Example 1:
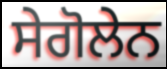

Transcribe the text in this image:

ਸੇਗੋਲੇਨ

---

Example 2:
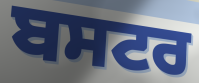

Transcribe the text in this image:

ਬਸਟਰ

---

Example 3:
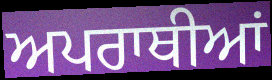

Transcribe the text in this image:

ਅਪਰਾਥੀਆਂ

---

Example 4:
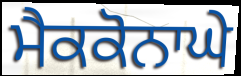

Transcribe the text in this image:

ਮੈਕਕੋਨਾਘੇ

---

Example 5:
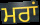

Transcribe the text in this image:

ਮਰਾਂ